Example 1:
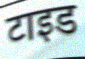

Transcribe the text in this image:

टाइड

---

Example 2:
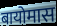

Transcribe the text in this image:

बायोमास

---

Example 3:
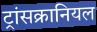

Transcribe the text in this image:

ट्रांसक्रानियल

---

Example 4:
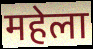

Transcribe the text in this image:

महेला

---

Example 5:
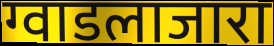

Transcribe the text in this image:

ग्वाडलाजारा